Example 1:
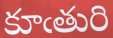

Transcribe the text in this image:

కూఁతురి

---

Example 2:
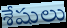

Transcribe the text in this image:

శేషులు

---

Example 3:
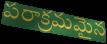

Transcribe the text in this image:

పరాక్రమమైన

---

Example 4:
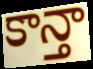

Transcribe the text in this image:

కాన్తా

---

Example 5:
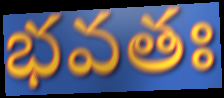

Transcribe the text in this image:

భవతః